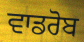
ਵਾਡਰੋਬ